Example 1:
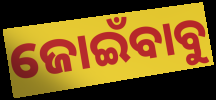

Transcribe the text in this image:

ଜୋଇଁବାବୁ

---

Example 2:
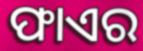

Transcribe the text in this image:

ଫାଏର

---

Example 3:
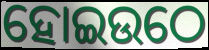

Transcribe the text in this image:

ହୋଇଉଠେ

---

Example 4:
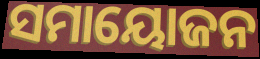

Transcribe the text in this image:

ସମାୟୋଜନ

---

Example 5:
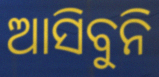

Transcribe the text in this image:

ଆସିବୁନି